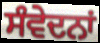
ਸੰਵੇਦਨਾਂ